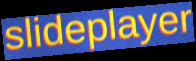
slideplayer